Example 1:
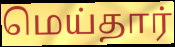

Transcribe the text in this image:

மெய்தார்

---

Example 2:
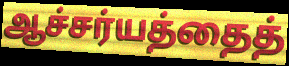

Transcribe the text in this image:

ஆச்சர்யத்தைத்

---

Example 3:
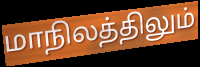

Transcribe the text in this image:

மாநிலத்திலும்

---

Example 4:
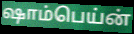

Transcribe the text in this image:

ஷாம்பெய்ன்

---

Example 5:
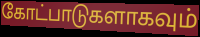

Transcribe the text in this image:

கோட்பாடுகளாகவும்